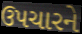
ઉપચારને